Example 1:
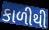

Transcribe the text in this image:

કાળીથી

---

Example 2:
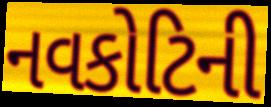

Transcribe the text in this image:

નવકોટિની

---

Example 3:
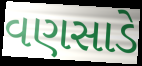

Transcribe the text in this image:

વણસાડે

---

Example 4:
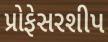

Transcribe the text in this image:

પ્રોફેસરશીપ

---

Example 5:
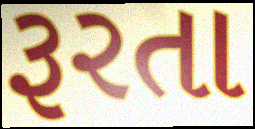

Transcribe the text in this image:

રૂરતા